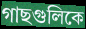
গাছগুলিকে